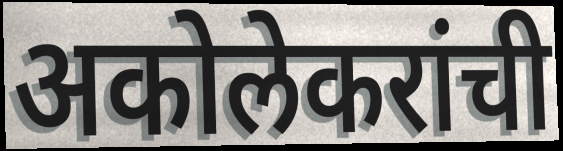
अकोलेकरांची